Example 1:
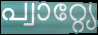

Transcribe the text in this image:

പ്വാറ്റ്യേ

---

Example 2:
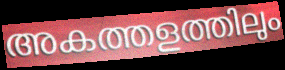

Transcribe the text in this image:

അകത്തളത്തിലും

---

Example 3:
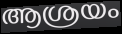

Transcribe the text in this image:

ആശ്രയം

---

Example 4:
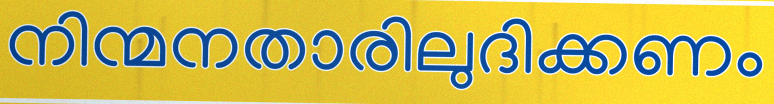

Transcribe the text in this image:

നിന്മനതാരിലുദിക്കണം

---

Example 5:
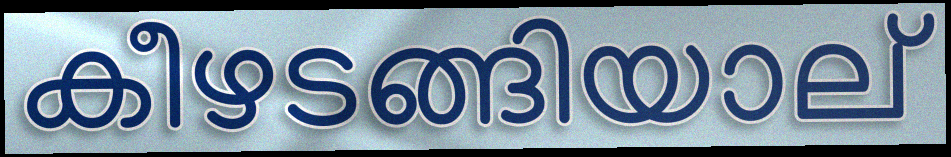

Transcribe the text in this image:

കീഴടങ്ങിയാല്